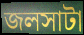
জলসাটা